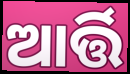
ଆର୍ତ୍ତି